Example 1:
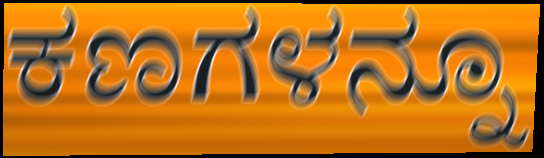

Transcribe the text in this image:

ಕಣಗಳನ್ನೂ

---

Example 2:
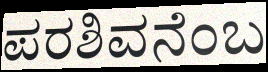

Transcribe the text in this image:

ಪರಶಿವನೆಂಬ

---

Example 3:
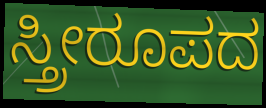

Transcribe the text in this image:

ಸ್ತ್ರೀರೂಪದ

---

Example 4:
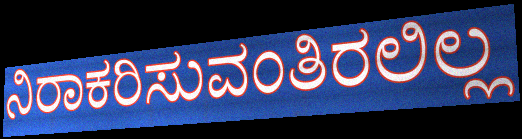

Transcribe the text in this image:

ನಿರಾಕರಿಸುವಂತಿರಲಿಲ್ಲ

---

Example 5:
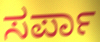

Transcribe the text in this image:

ಸರ್ಪಾ